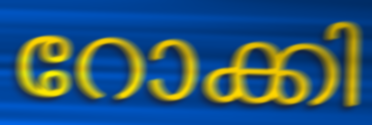
റോക്കി